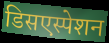
डिसएस्पेशन